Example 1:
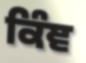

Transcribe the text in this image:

ਕਿੰਞ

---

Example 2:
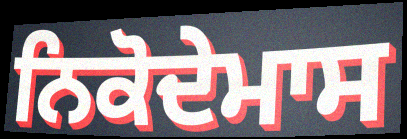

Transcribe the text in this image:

ਨਿਕੋਦੇਮਾਸ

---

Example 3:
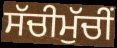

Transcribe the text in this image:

ਸੱਚੀਮੁੱਚੀਂ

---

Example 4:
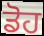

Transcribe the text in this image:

ਡੋਹ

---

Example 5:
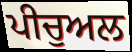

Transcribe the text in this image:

ਪੀਚੁਅਲ